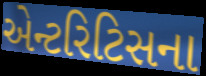
એન્ટરિટિસના